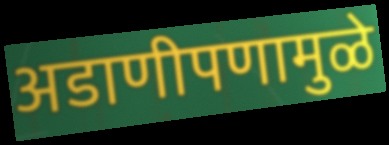
अडाणीपणामुळे